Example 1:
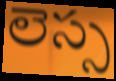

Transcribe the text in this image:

లెస్స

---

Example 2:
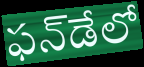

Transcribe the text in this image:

ఫన్‌డేలో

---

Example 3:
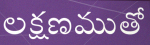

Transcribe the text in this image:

లక్షణముతో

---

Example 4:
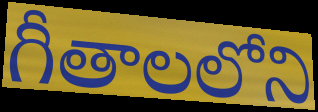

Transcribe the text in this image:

గీతాలలోని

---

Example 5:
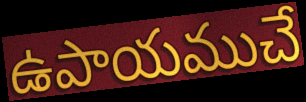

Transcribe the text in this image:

ఉపాయముచే